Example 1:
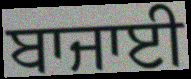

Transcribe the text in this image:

ਬਾਜਾਈ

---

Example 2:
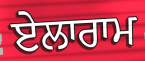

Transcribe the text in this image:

ਏਲਾਰਾਮ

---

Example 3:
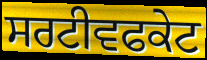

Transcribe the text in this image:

ਸਰਟੀਵਫਕੇਟ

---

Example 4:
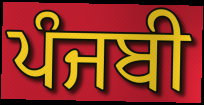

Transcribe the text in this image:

ਪੰਜਬੀ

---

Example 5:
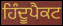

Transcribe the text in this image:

ਹਿੰਦੂਪੈਕਟ